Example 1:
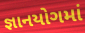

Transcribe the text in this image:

જ્ઞાનયોગમાં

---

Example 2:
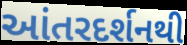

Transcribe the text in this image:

આંતરદર્શનથી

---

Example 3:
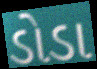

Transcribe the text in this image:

ડોડા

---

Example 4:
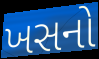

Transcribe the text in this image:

ખસનો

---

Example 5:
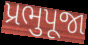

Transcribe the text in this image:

પ્રભુપૂજા